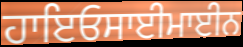
ਹਾਇਓਸਾਈਮਾਈਨ